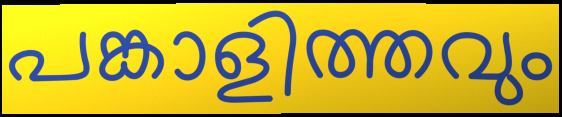
പങ്കാളിത്തവും